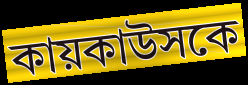
কায়কাউসকে